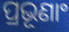
ପ୍ରଭୂଣାଂ